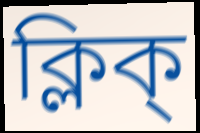
ক্লিক্